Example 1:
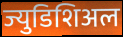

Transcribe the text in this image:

ज्युडिशिअल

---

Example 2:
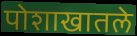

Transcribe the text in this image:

पोशाखातले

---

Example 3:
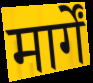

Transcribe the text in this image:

मार्गें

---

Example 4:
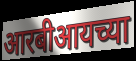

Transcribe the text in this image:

आरबीआयच्या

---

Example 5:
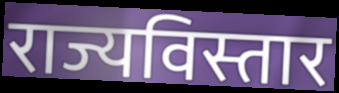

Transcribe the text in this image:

राज्यविस्तार